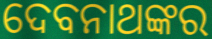
ଦେବନାଥଙ୍କର